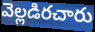
వెల్లడిరచారు